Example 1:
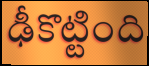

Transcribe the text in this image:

ఢీకొట్టింది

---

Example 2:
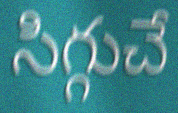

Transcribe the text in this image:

సిగ్గుచే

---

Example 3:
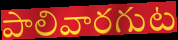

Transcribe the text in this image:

పాలివారగుట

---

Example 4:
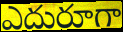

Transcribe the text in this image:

ఎదురూగా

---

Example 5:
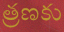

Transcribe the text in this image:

త్రణకు